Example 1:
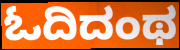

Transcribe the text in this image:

ಓದಿದಂಥ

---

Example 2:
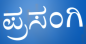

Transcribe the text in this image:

ಪ್ರಸಂಗಿ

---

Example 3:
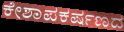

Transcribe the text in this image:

ಕೇಶಾಪಕರ್ಷಣದ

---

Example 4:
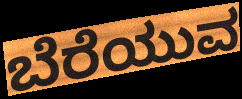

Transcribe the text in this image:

ಬೆರೆಯುವ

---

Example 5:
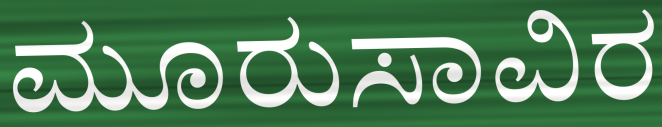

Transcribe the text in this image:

ಮೂರುಸಾವಿರ